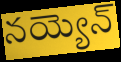
నయ్యెన్